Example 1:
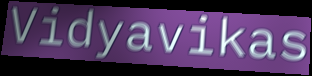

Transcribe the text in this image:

Vidyavikas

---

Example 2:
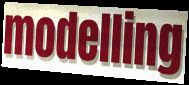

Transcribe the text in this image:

modelling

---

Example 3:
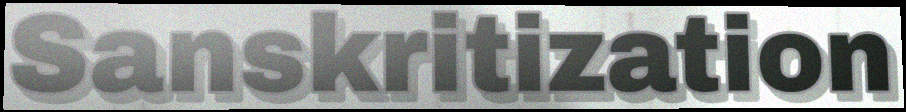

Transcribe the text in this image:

Sanskritization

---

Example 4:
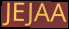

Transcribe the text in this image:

JEJAA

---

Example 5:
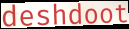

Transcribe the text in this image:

deshdoot